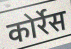
कोर्रेस